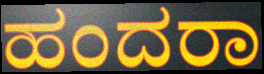
ಹಂದರಾ